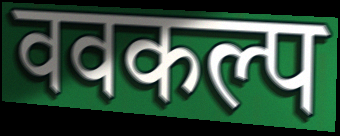
ववकल्प